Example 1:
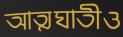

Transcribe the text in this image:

আত্মঘাতীও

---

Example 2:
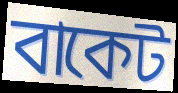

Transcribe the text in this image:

বাকেট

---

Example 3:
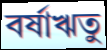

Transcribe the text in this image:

বর্ষাঋতু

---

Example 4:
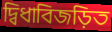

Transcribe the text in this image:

দ্বিধাবিজড়িত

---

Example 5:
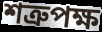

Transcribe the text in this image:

শত্রুপক্ষ